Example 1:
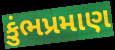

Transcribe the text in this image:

કુંભપ્રમાણ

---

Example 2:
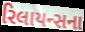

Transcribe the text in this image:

રિલાયન્સના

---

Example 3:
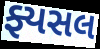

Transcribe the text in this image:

ફ્યસલ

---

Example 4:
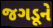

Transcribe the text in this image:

જગડૂને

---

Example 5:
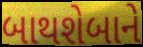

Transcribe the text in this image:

બાથશેબાને